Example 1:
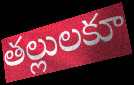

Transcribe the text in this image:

తల్లులకూ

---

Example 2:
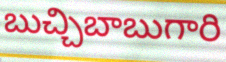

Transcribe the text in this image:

బుచ్చిబాబుగారి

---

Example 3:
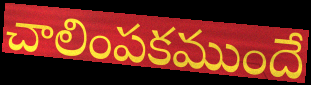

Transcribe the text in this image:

చాలింపకముందే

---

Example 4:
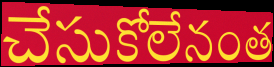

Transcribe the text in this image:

చేసుకోలేనంత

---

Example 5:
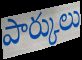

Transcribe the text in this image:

పార్కులు